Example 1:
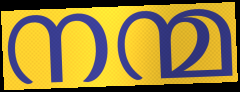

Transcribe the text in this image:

നന്മ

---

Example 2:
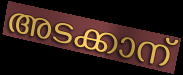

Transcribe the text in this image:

അടക്കാന്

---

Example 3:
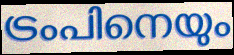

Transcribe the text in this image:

ട്രംപിനെയും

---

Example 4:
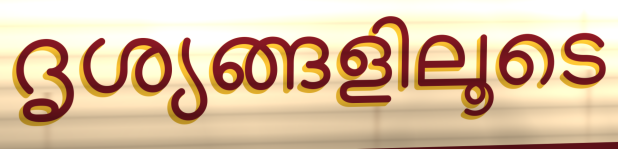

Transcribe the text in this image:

ദൃശ്യങ്ങളിലൂടെ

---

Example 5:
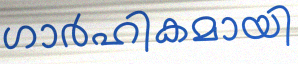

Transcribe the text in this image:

ഗാർഹികമായി